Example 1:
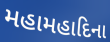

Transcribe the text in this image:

મહામહાદિના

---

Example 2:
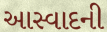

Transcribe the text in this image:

આસ્વાદની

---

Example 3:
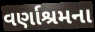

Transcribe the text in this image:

વર્ણાશ્રમના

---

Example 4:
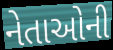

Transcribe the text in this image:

નેતાઓની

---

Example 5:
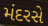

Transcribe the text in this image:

મંદરસે